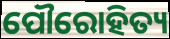
ପୌରୋହିତ୍ୟ